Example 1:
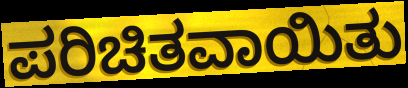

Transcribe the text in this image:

ಪರಿಚಿತವಾಯಿತು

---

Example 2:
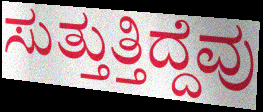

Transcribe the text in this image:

ಸುತ್ತುತ್ತಿದ್ದೆವು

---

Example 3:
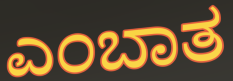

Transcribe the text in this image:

ಎಂಬಾತ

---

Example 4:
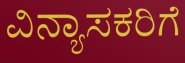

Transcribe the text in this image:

ವಿನ್ಯಾಸಕರಿಗೆ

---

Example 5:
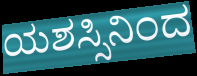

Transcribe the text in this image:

ಯಶಸ್ಸಿನಿಂದ